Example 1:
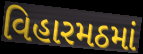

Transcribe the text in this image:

વિહારમઠમાં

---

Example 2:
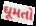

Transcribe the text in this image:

ઘૂમતો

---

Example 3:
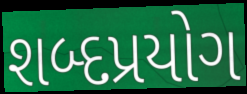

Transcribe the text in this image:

શબ્દપ્રયોગ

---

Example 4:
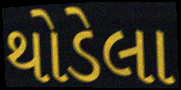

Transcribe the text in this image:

થોડેલા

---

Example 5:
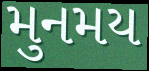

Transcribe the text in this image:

મુનમય